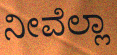
ನೀವೆಲ್ಲಾ